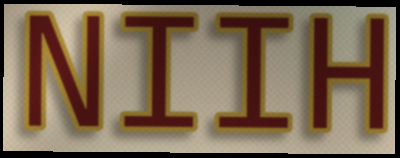
NIIH